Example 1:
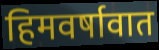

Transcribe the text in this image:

हिमवर्षावात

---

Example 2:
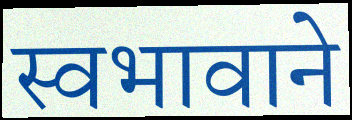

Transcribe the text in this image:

स्वभावाने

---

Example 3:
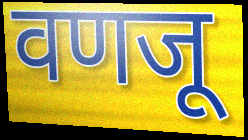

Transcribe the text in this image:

वणजू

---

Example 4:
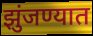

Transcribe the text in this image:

झुंजण्यात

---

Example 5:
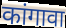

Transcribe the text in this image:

कांगावा